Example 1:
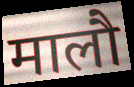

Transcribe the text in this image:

मालौ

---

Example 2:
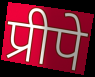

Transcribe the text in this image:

प्रीपे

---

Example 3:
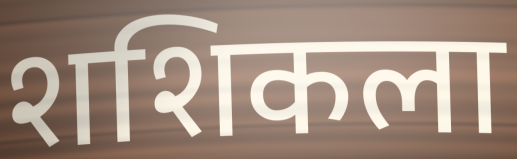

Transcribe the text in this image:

शशिकला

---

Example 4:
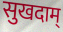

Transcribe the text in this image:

सुखदाम्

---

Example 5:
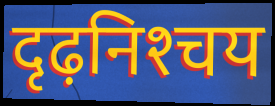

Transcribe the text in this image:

दृढ़निश्चय